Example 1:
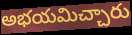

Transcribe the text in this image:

అభయమిచ్చారు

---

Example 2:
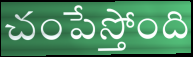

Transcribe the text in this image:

చంపేస్తోంది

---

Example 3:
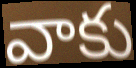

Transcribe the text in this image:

వాకు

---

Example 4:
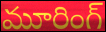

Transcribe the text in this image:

మూరింగ్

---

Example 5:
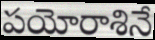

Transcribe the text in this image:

పయోరాశినే